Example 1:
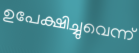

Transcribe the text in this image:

ഉപേക്ഷിച്ചുവെന്ന്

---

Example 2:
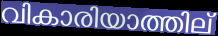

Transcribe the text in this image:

വികാരിയാത്തില്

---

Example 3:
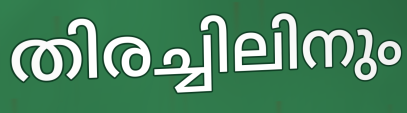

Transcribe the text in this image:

തിരച്ചിലിനും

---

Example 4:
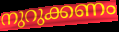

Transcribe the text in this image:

നുറുക്കണം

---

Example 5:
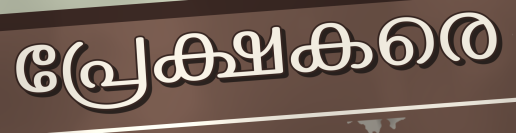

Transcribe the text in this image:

പ്രേക്ഷകരെ